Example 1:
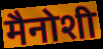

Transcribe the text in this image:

मैनोशी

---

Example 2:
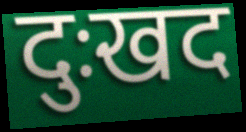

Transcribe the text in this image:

दुःखद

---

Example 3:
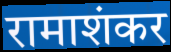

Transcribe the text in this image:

रामाशंकर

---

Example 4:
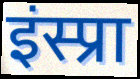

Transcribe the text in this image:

इंस्प्रा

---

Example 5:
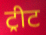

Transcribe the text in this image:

ट्रीट